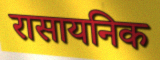
रासायनिक